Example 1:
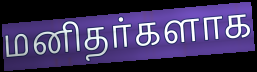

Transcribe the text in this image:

மனிதர்களாக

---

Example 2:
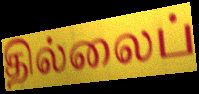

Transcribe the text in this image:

தில்லைப்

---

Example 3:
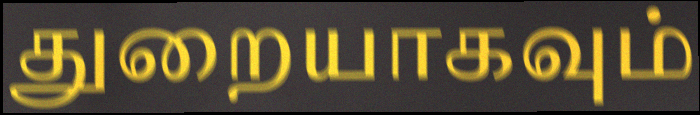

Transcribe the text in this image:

துறையாகவும்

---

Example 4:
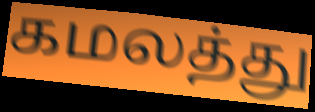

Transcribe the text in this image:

கமலத்து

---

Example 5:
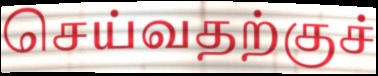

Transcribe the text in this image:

செய்வதற்குச்